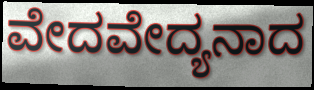
ವೇದವೇದ್ಯನಾದ